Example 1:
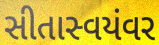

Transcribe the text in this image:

સીતાસ્વયંવર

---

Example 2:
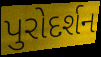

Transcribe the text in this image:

પુરોદર્શન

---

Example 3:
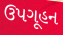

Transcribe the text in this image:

ઉપગૂહન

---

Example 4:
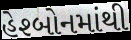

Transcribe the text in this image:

હેશ્બોનમાંથી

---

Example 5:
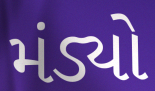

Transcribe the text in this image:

મંડ્યો